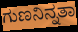
ಗುಣನಿನ್ನತಾ